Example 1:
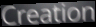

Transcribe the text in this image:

Creation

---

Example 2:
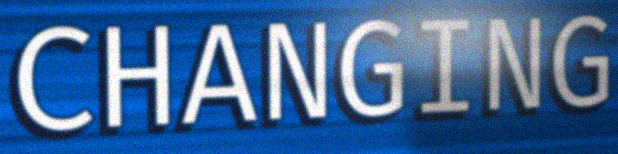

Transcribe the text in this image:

CHANGING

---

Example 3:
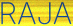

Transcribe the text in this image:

RAJA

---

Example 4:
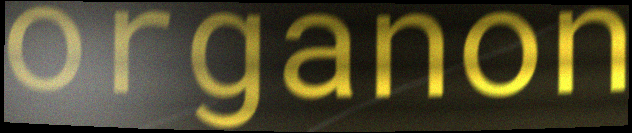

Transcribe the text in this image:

organon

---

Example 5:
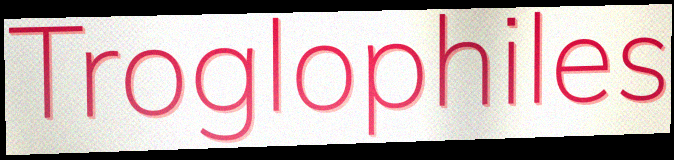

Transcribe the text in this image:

Troglophiles